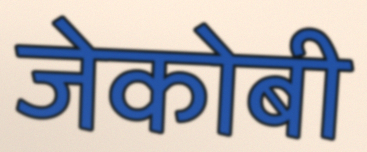
जेकोबी